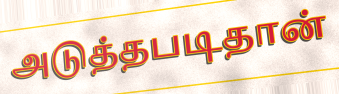
அடுத்தபடிதான்